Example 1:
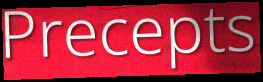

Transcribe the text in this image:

Precepts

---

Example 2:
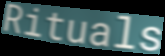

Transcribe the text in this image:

Rituals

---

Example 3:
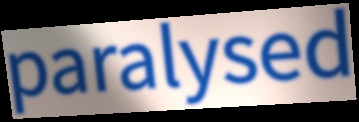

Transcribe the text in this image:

paralysed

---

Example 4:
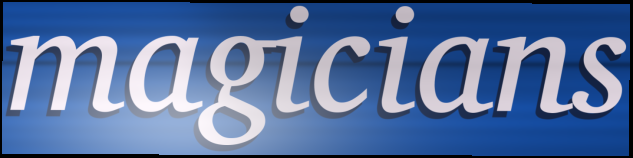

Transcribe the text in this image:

magicians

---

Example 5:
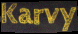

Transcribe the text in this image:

Karvy